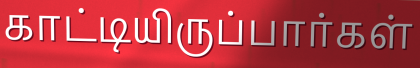
காட்டியிருப்பார்கள்